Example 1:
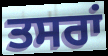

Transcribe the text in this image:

ਤਸਰਾਂ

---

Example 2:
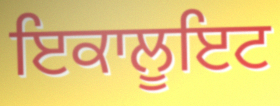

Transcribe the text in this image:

ਇਕਾਲੂਇਟ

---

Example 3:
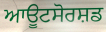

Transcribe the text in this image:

ਆਊਟਸੋਰਸ਼ਡ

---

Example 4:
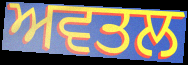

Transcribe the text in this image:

ਅਵਤਲ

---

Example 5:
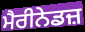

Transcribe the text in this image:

ਮੈਰੀਨੇਡਜ਼